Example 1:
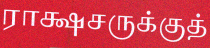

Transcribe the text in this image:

ராக்ஷசருக்குத்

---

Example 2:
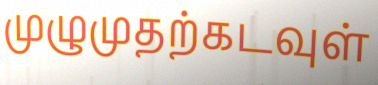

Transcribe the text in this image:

முழுமுதற்கடவுள்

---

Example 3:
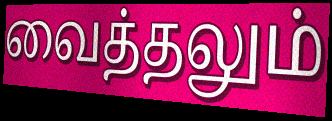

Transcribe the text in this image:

வைத்தலும்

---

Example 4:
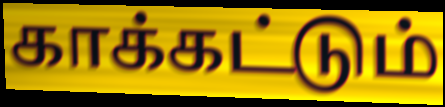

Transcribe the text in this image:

காக்கட்டும்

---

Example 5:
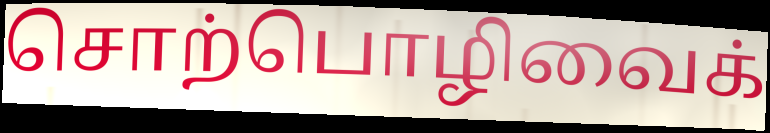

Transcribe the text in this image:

சொற்பொழிவைக்